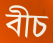
বীচ